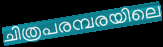
ചിത്രപരമ്പരയിലെ